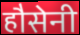
हौसेनी